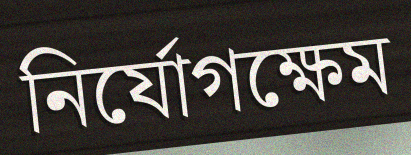
নির্যোগক্ষেম